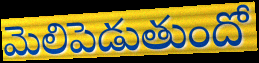
మెలిపెడుతుందో